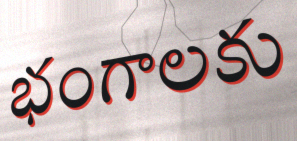
భంగాలకు